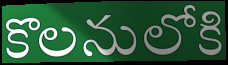
కొలనులోకి